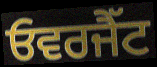
ਓਵਰਜੈੱਟ